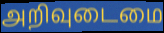
அறிவுடைமை